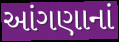
આંગણાનાં